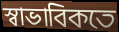
স্বাভাবিকতে